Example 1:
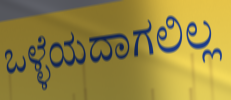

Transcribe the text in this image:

ಒಳ್ಳೆಯದಾಗಲಿಲ್ಲ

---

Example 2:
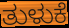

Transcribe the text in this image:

ತುಳುಕೆ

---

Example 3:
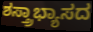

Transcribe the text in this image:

ಶಸ್ತ್ರಾಭ್ಯಾಸದ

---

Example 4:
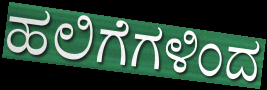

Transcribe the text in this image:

ಹಲಿಗೆಗಳಿಂದ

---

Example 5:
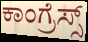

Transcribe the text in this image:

ಕಾಂಗ್ರೆಸ್ಸ್